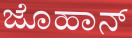
ಜೊಹಾನ್